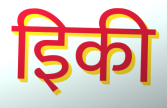
इिकी